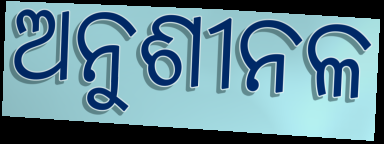
ଅନୁଶୀନଳ